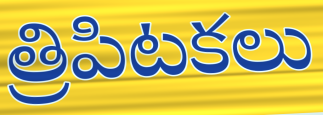
త్రిపిటకలు